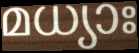
മധ്യാഃ